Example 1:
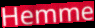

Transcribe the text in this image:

Hemme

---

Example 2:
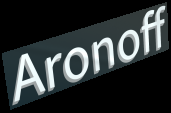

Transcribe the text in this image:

Aronoff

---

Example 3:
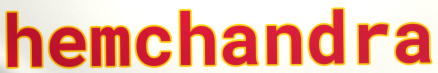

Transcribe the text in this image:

hemchandra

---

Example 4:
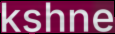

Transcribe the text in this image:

kshne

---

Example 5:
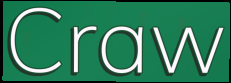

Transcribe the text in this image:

Craw